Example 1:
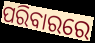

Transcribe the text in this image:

ପରିବାରରେ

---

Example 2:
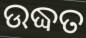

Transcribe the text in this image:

ଉଦ୍ଧତ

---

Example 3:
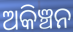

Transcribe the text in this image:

ଅକିଞ୍ଚନ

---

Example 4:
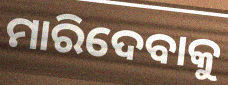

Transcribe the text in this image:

ମାରିଦେବାକୁ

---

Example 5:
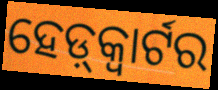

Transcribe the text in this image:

ହେଡ଼୍‌କ୍ୱାର୍ଟର